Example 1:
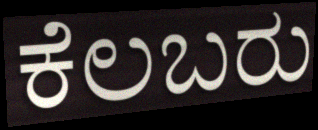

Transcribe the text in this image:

ಕೆಲಬರು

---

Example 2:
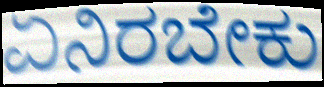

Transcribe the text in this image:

ಏನಿರಬೇಕು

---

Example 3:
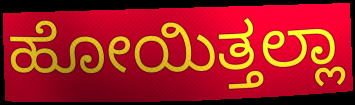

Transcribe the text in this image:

ಹೋಯಿತ್ತಲ್ಲಾ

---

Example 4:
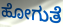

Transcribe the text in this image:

ಹೋಗುತೆ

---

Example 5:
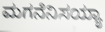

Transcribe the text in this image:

ಮಗನೆನಿಸಯ್ಯಾ